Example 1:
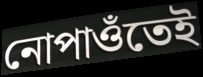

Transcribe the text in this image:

নোপাওঁতেই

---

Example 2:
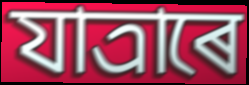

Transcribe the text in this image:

যাত্ৰাৰে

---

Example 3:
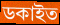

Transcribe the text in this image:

ডকাইত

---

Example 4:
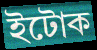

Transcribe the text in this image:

ইটোক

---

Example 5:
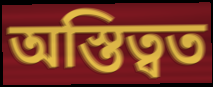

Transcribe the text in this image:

অস্তিত্বত